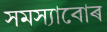
সমস্যাবোৰ